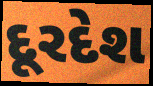
દૂરદેશ